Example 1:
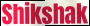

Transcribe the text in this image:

Shikshak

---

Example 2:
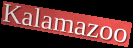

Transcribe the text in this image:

Kalamazoo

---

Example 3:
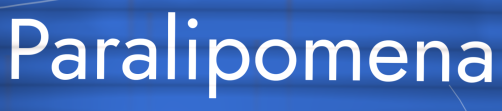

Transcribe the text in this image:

Paralipomena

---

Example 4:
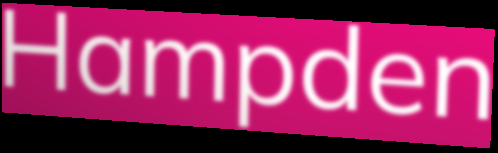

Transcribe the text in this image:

Hampden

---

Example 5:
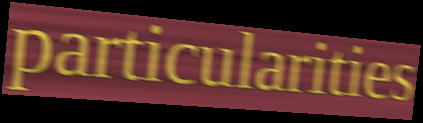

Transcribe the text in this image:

particularities